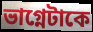
ভাগ্নেটাকে